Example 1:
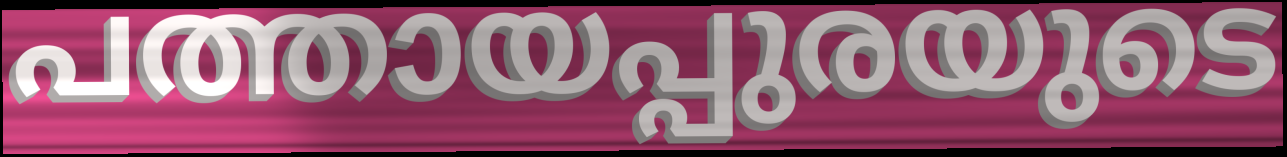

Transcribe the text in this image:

പത്തായപ്പുരയുടെ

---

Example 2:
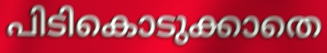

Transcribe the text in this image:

പിടികൊടുക്കാതെ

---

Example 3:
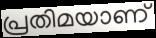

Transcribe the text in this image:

പ്രതിമയാണ്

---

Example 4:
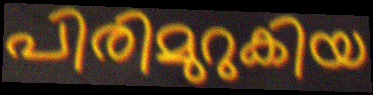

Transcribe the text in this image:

പിരിമുറുകിയ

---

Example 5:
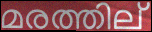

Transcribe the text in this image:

മരത്തില്